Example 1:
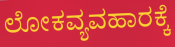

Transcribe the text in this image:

ಲೋಕವ್ಯವಹಾರಕ್ಕೆ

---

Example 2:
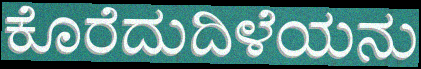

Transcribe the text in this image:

ಕೊರೆದುದಿಳೆಯನು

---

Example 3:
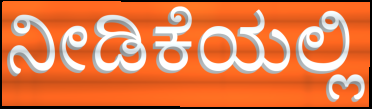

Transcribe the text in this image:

ನೀಡಿಕೆಯಲ್ಲಿ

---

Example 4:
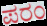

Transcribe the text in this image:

ಪರಂ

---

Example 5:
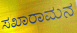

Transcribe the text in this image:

ಸಖಾರಾಮನ